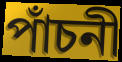
পাঁচনী